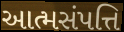
આત્મસંપત્તિ